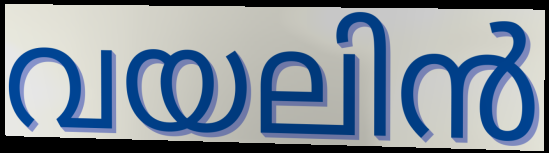
വയലിൻ